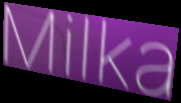
Milka